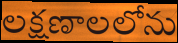
లక్షణాలలోను